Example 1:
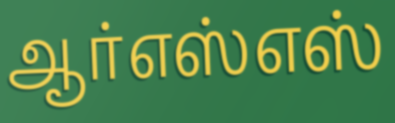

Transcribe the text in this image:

ஆர்எஸ்எஸ்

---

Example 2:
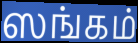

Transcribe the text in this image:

ஸங்கம்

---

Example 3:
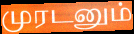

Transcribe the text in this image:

முரடனும்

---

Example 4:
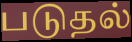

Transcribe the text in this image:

படுதல்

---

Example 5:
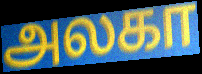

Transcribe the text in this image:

அலகா